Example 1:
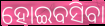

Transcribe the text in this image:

ହୋଇବସିବା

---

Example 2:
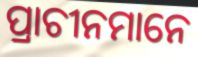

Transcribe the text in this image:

ପ୍ରାଚୀନମାନେ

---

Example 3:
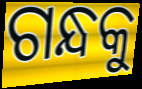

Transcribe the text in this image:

ଗନ୍ଧକୁ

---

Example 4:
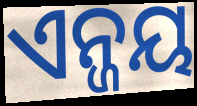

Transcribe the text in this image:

ଏନ୍ଜୟ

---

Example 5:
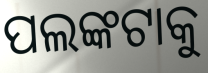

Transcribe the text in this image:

ପଲଙ୍କଟାକୁ